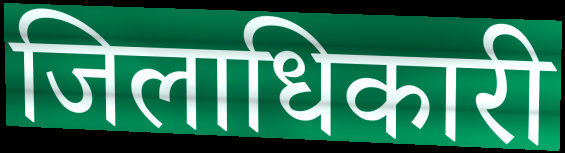
जिलाधिकारी